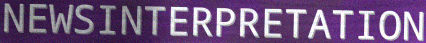
NEWSINTERPRETATION